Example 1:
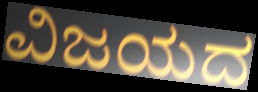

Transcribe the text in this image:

ವಿಜಯದ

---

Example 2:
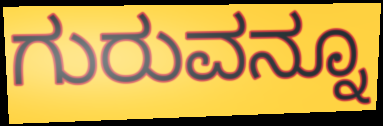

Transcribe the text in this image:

ಗುರುವನ್ನೂ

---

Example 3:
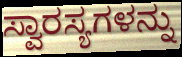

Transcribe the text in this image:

ಸ್ವಾರಸ್ಯಗಳನ್ನು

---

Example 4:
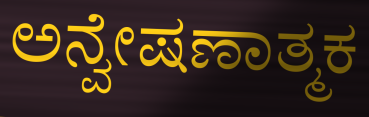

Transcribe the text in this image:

ಅನ್ವೇಷಣಾತ್ಮಕ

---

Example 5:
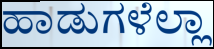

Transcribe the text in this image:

ಹಾಡುಗಳೆಲ್ಲಾ